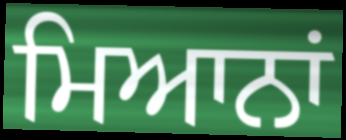
ਮਿਆਨਾਂ